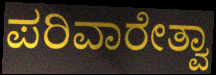
ಪರಿವಾರೇತ್ವಾ